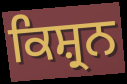
ਕਿਸ਼੍ਰਨ